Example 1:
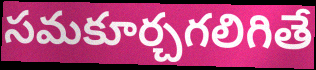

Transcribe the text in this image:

సమకూర్చగలిగితే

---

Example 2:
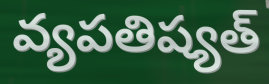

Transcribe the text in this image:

వ్యపతిష్యత్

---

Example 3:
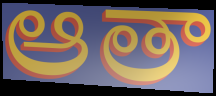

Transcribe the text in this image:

ఆతా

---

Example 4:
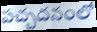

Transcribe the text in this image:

పచ్చదనంలో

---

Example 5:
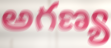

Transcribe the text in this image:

అగణ్య